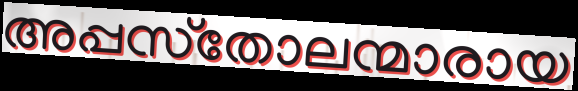
അപ്പസ്‌തോലന്മാരായ